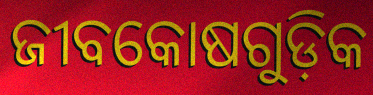
ଜୀବକୋଷଗୁଡ଼ିକ